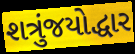
શત્રુંજયોદ્ધાર